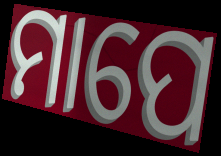
ମାପେ